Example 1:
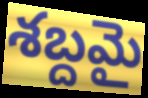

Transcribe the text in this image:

శబ్దమై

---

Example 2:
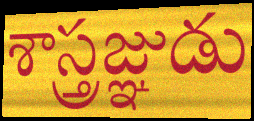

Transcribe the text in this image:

శాస్త్రజ్ఞుడు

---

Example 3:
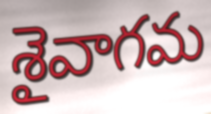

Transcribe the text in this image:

శైవాగమ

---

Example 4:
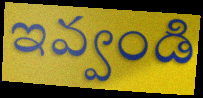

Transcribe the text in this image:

ఇవ్వండి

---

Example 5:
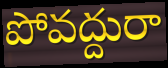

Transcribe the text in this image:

పోవద్దురా